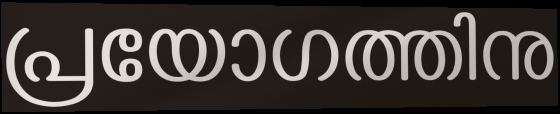
പ്രയോഗത്തിനു